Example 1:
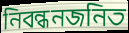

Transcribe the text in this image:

নিবন্ধনজনিত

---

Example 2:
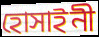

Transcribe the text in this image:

হোসাইনী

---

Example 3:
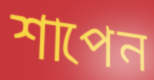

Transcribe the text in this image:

শাপেন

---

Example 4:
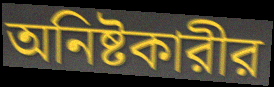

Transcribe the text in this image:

অনিষ্টকারীর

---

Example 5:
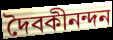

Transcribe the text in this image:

দৈবকীনন্দন